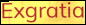
Exgratia